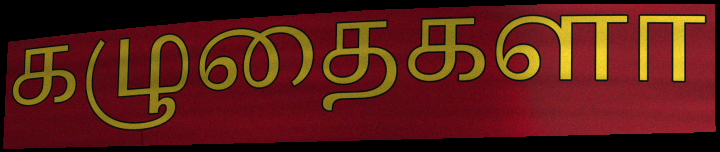
கழுதைகளா